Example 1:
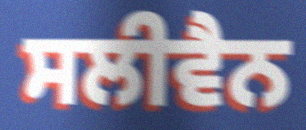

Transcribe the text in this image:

ਸਲੀਵੈਨ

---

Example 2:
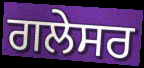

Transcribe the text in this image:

ਗਲੇਸਰ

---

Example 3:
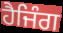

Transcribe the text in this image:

ਹੈਜਿੰਗ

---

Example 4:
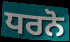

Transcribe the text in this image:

ਧਰਨੋ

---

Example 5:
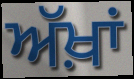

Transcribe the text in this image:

ਅੱਖ਼ਾਂ